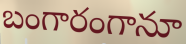
బంగారంగానూ